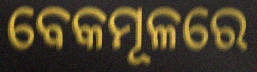
ବେକମୂଳରେ